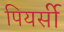
पियर्सी